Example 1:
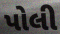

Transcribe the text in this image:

પોલી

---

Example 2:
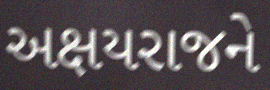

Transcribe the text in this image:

અક્ષયરાજને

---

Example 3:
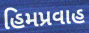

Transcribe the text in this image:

હિમપ્રવાહ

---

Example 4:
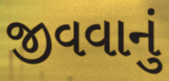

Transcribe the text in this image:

જીવવાનું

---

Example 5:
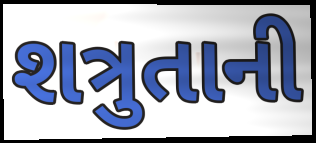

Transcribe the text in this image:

શત્રુતાની